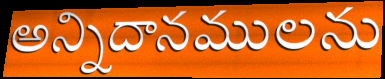
అన్నిదానములను